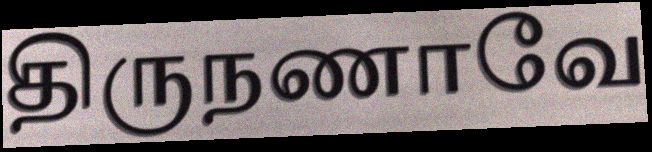
திருநணாவே